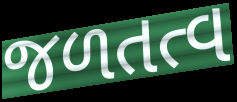
જળતત્વ